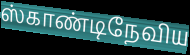
ஸ்காண்டிநேவிய